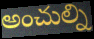
అంచుల్ని